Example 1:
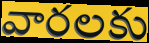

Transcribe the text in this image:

వారలకు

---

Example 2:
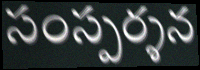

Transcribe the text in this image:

సంస్పర్శన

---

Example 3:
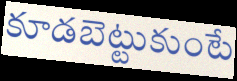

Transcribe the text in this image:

కూడబెట్టుకుంటే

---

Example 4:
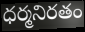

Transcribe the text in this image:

ధర్మనిరతం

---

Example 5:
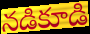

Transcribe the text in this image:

నడికూడి